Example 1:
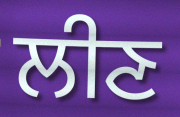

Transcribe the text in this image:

ਲੀਣ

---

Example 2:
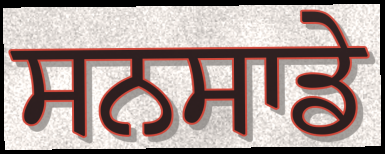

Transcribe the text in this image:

ਸਨਸਾਡੇ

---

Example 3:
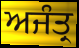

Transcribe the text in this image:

ਅਜੰਤ੍ਰ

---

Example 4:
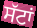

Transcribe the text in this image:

ਸੱਟਾਂ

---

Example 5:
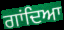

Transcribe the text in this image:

ਗਾਂਦਿਆ